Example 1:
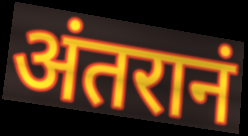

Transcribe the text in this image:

अंतरानं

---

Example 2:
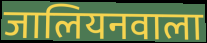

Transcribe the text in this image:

जालियनवाला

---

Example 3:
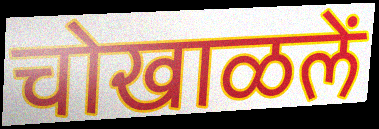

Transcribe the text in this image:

चोखाळलें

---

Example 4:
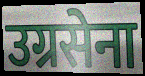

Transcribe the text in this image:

उग्रसेना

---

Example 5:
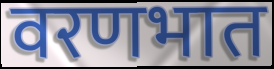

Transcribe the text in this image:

वरणभात